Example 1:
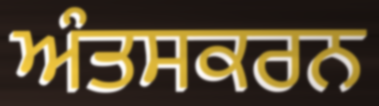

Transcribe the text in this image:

ਅੰਤਸਕਰਨ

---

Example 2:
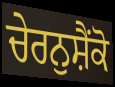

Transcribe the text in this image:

ਚੇਰਨੁਸ਼ੈਂਕੋ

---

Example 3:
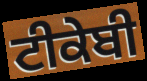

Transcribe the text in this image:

ਟੀਕੇਬੀ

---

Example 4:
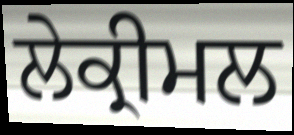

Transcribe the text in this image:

ਲੇਕ੍ਰੀਮਲ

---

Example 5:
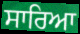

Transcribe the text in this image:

ਸਾਰਿਆ